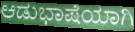
ಆಡುಭಾಷೆಯಾಗಿ